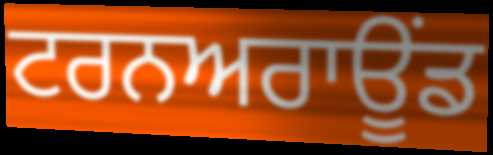
ਟਰਨਅਰਾਊਂਡ